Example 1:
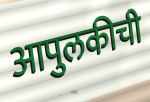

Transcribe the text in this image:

आपुलकीची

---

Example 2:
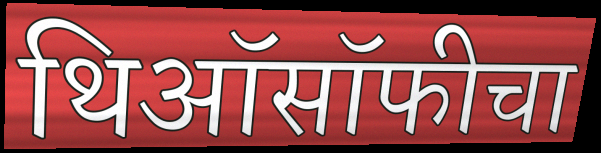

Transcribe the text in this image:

थिऑसॉफीचा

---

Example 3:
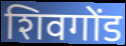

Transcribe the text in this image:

शिवगोंड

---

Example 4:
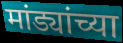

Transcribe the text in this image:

मांड्यांच्या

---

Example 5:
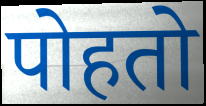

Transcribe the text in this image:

पोहतो